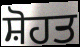
ਸ਼ੋਹਤ